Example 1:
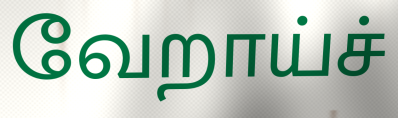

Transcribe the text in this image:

வேறாய்ச்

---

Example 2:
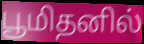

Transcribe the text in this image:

பூமிதனில்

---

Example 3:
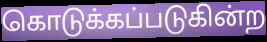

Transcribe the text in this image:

கொடுக்கப்படுகின்ற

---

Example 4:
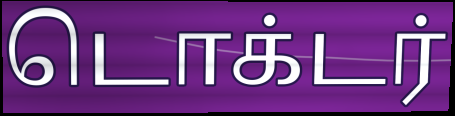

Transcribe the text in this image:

டொக்டர்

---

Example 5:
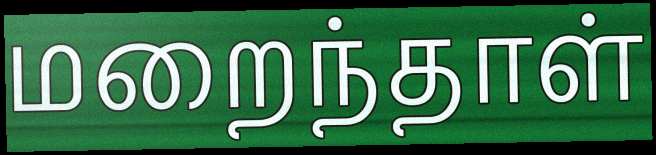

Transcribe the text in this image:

மறைந்தாள்